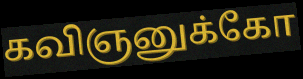
கவிஞனுக்கோ